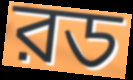
রড